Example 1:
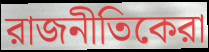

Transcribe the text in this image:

রাজনীতিকেরা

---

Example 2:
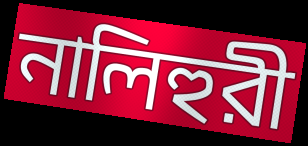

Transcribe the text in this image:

নালিহুরী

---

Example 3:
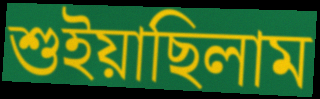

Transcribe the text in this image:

শুইয়াছিলাম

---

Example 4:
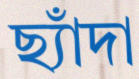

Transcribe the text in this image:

ছ্যাঁদা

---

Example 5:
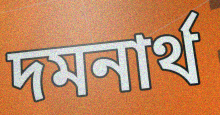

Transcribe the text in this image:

দমনার্থ